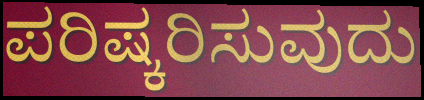
ಪರಿಷ್ಕರಿಸುವುದು